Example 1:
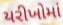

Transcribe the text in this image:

યરીખોમાં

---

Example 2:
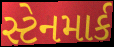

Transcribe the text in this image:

સ્ટેનમાર્ક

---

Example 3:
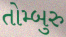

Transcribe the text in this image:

તોમ્બુરુ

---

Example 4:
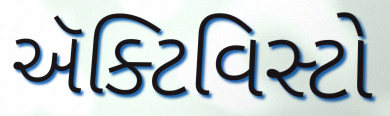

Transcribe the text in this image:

ઍક્ટિવિસ્ટો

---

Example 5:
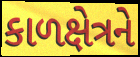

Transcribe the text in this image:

કાળક્ષેત્રને